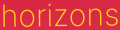
horizons